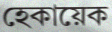
হেকায়েক